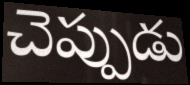
చెప్పుడు